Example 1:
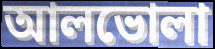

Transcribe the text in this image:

আলভোলা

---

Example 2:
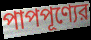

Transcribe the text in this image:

পাপপূণ্যের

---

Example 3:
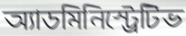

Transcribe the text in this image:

অ্যাডমিনিস্ট্রেটিভ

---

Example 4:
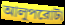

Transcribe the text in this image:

আলুপরোটা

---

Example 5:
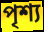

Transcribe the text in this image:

পৃশ্য